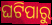
ଘଟିପାରୁ